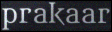
prakaar